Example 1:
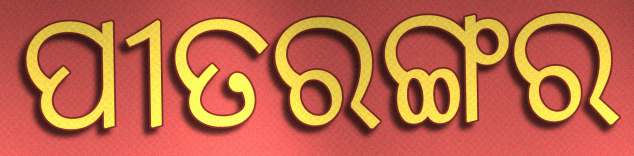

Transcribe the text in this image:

ପୀତରଙ୍ଗର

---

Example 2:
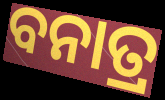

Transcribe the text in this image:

ବନାତ୍ର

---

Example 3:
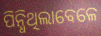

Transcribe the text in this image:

ପିନ୍ଧିଥିଲାବେଳେ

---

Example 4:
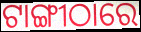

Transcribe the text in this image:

ଟାଙ୍ଗୀଠାରେ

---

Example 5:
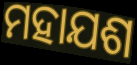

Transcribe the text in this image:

ମହାଯଶ